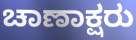
ಚಾಣಾಕ್ಷರು